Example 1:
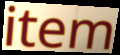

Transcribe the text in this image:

item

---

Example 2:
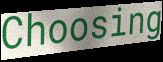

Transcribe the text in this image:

Choosing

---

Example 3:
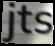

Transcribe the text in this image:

jts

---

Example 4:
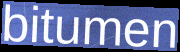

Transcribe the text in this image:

bitumen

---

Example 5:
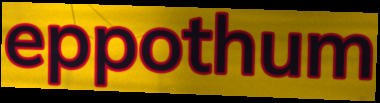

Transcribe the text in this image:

eppothum